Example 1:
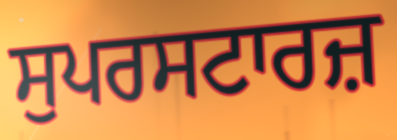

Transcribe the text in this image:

ਸੁਪਰਸਟਾਰਜ਼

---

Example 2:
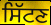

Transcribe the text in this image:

ਸਿੱਟਣ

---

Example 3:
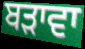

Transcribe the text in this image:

ਬੜਾਵਾ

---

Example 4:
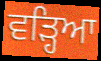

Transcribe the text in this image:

ਵੜ੍ਹਿਆ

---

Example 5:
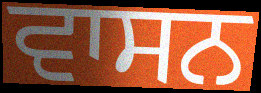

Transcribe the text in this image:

ਵਾਸਨ